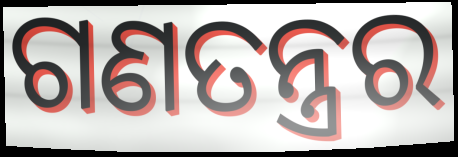
ଗଣତନ୍ତ୍ରର